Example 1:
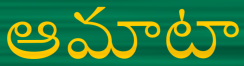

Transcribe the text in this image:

ఆమాటా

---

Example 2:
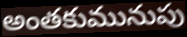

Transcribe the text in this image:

అంతకుమునుపు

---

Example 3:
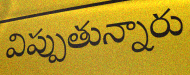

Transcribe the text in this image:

విప్పుతున్నారు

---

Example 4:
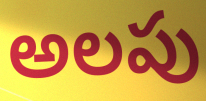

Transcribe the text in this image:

అలపు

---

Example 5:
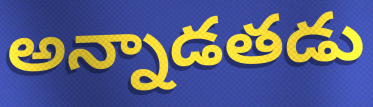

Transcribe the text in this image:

అన్నాడతడు